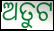
ଅତୁଟ